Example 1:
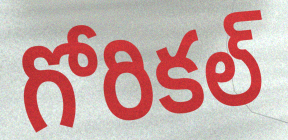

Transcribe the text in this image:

గోరికల్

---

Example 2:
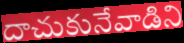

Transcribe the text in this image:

దాచుకునేవాడిని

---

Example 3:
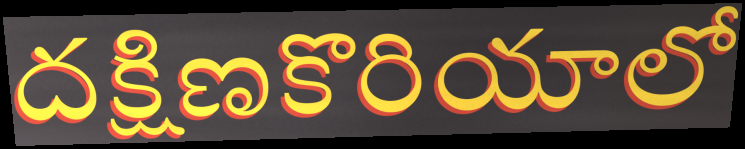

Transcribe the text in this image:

దక్షిణకొరియాలో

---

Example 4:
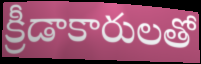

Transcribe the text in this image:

క్రీడాకారులతో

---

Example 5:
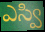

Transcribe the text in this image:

ఎస్వి